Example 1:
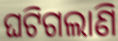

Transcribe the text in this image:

ଘଟିଗଲାଣି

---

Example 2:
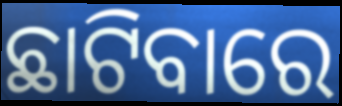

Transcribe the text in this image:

ଛାଟିବାରେ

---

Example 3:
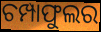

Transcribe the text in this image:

ଚମ୍ପାଫୁଲର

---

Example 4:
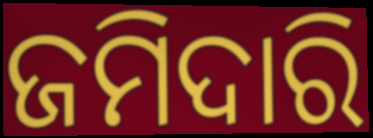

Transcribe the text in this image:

ଜମିଦାରି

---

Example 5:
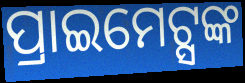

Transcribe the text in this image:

ପ୍ରାଇମେଟ୍ସଙ୍କ